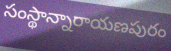
సంస్థాన్నారాయణపురం